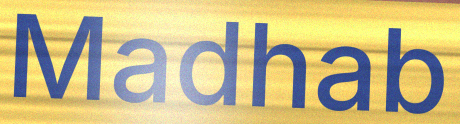
Madhab